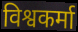
विश्वकर्मा